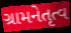
ગ્રામનેતૃત્વ